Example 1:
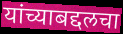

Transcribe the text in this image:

यांच्याबद्दलचा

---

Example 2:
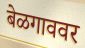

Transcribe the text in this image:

बेळगाववर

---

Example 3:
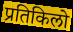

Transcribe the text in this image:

प्रतिकिलो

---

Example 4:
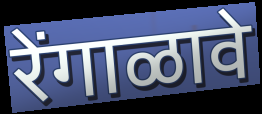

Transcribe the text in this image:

रेंगाळावे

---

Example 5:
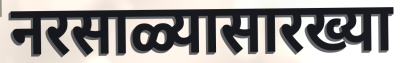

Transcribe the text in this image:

नरसाळ्यासारख्या